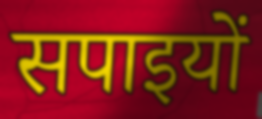
सपाइयों